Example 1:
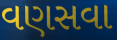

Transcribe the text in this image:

વણસવા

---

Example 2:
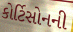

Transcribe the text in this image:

કોર્ટિસોનની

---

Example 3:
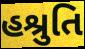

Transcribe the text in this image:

હશ્રુતિ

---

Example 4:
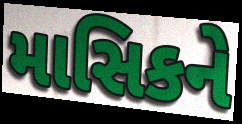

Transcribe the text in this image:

માસિકને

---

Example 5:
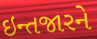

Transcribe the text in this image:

ઇન્તજારને